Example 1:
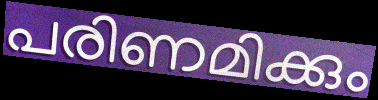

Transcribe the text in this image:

പരിണമിക്കും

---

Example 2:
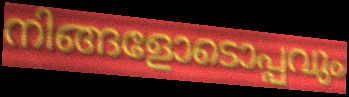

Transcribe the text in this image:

നിങ്ങളോടൊപ്പവും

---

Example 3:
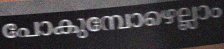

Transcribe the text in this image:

പോകുമ്പോഴെല്ലാം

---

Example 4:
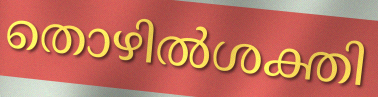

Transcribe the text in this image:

തൊഴിൽശക്തി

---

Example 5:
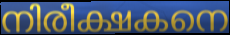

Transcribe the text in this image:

നിരീക്ഷകനെ